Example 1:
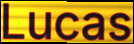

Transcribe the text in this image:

Lucas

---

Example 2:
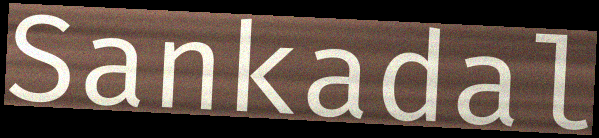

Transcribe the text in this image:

Sankadal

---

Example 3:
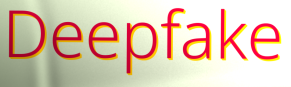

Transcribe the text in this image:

Deepfake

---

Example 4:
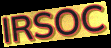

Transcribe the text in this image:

IRSOC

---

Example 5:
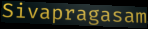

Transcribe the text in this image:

Sivapragasam